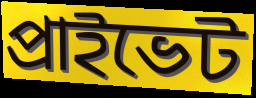
প্ৰাইভেট